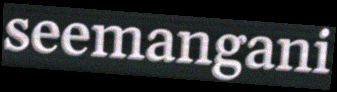
seemangani